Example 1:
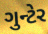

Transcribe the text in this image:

ગુન્ટેર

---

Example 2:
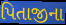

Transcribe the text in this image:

પિતાજીના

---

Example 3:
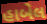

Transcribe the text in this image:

હાબેલ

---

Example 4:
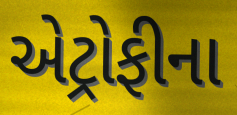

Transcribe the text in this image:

એટ્રોફીના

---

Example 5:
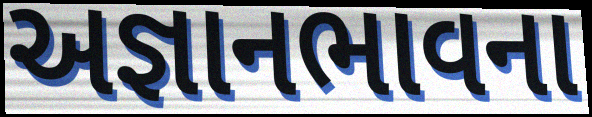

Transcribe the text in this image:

અજ્ઞાનભાવના